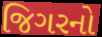
જિગરનો